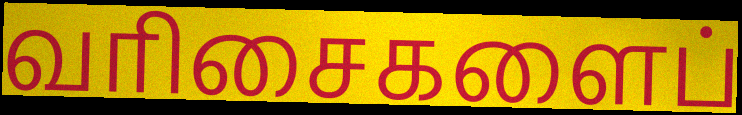
வரிசைகளைப்